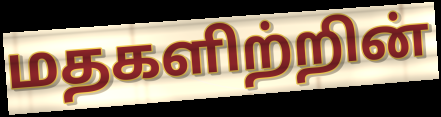
மதகளிற்றின்